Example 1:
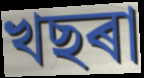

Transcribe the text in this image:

খছৰা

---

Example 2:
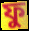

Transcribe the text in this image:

ফু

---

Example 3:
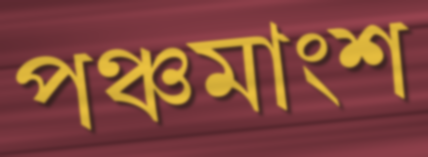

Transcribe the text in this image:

পঞ্চমাংশ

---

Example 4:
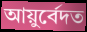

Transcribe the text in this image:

আয়ুৰ্বেদত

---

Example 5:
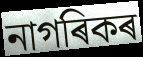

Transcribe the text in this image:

নাগৰিকৰ